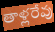
తాళ్లరేవు